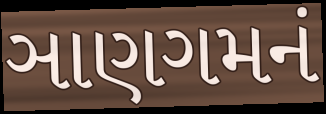
ઞાણગમનં